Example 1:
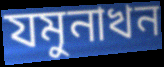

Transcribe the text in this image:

যমুনাখন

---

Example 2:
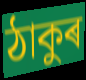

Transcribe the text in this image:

ঠাকুৰ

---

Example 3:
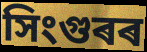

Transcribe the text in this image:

সিংগুৰৰ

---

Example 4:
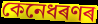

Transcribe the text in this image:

কেনেধৰণৰ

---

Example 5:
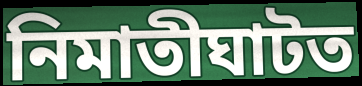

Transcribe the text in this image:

নিমাতীঘাটত